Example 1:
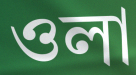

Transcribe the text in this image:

ওলা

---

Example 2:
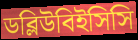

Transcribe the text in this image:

ডব্লিউবিইসিসি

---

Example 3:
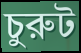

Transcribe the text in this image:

চুরুট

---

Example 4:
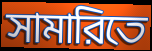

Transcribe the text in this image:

সামারিতে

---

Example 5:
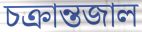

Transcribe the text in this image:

চক্রান্তজাল